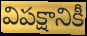
విపక్షానికీ